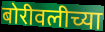
बोरीवलीच्या